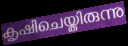
കൃഷിചെയ്തിരുന്നു